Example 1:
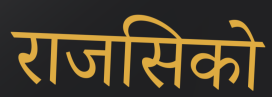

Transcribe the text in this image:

राजसिको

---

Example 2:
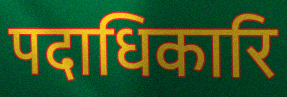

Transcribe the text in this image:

पदाधिकारि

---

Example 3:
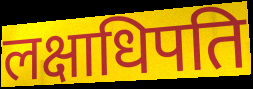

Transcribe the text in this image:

लक्षाधिपति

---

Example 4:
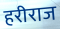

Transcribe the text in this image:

हरीराज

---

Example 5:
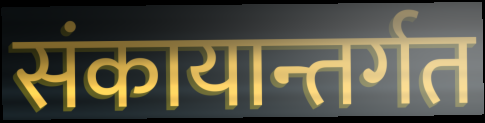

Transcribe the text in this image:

संकायान्तर्गत